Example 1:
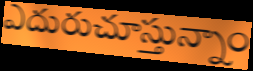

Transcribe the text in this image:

ఎదురుచూస్తున్నాం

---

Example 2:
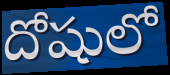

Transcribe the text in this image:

దోషులో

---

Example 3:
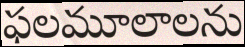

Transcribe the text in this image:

ఫలమూలాలను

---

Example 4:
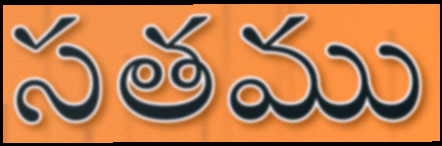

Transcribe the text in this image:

సతము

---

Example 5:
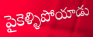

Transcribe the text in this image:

పైకెళ్ళిపోయాడు